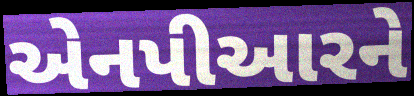
એનપીઆરને